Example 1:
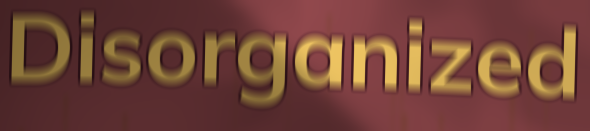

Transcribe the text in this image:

Disorganized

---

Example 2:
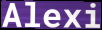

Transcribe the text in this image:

Alexi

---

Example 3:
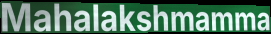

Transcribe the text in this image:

Mahalakshmamma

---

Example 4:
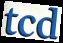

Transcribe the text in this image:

tcd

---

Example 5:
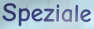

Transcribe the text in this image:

Speziale